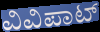
ವಿವಿಪಾಟ್